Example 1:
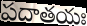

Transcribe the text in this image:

పదాతయః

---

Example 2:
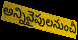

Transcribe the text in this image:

అన్నివైపులనుంచీ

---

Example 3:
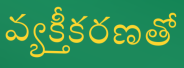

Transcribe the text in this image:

వ్యక్తీకరణతో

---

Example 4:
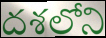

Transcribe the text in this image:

దశలోని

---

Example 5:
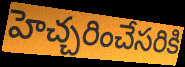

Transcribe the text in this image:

హెచ్చరించేసరికి